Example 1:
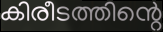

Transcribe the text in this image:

കിരീടത്തിന്റെ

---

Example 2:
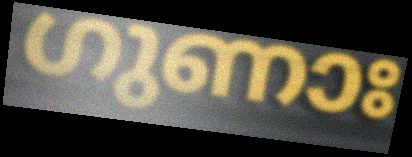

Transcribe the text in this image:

ഗുണാഃ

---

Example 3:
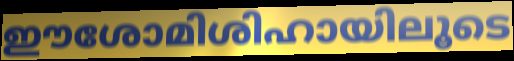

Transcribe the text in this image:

ഈശോമിശിഹായിലൂടെ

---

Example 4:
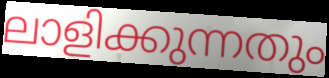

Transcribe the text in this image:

ലാളിക്കുന്നതും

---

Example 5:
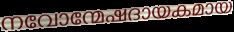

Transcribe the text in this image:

നവോന്മേഷദായകമായ